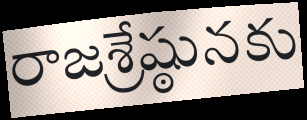
రాజశ్రేష్ఠునకు